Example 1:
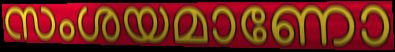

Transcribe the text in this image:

സംശയമാണോ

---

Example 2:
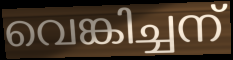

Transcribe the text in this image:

വെങ്കിച്ചന്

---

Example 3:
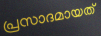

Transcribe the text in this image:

പ്രസാദമായത്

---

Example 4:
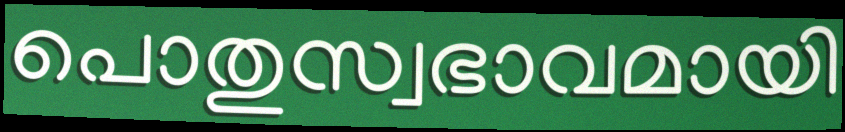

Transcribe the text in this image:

പൊതുസ്വഭാവമായി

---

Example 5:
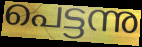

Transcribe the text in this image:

പെട്ടന്നു